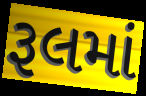
રૂલમાં